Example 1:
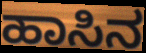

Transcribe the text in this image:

ಹಾಸಿನ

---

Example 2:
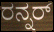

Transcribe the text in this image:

ರನ್ನರ್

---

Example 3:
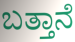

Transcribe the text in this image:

ಬತ್ತಾನೆ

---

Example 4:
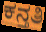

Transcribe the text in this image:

ಕನ್ತತಿ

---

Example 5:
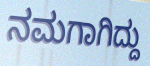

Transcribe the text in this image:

ನಮಗಾಗಿದ್ದು